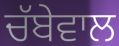
ਚੱਬੇਵਾਲ